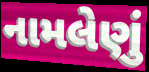
નામલેણું